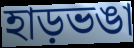
হাড়ভঙা